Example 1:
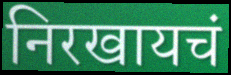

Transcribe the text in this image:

निरखायचं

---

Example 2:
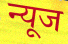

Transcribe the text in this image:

न्यूज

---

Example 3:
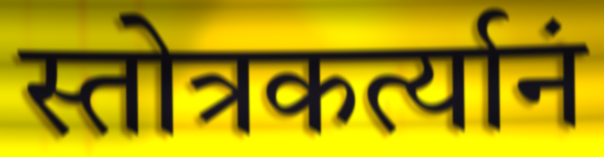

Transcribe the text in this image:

स्तोत्रकर्त्यानं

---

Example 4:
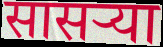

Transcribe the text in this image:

सासर्‍या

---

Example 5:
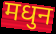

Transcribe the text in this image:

मधुन